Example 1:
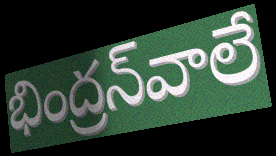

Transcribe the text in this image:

భింద్రన్‌వాలే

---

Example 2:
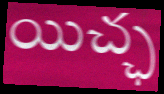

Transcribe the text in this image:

యిచ్ఛ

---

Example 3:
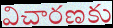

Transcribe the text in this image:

విచారణకు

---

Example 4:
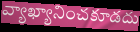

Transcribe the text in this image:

వ్యాఖ్యానించకూడదు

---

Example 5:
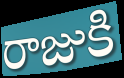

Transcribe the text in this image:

రాజుకి